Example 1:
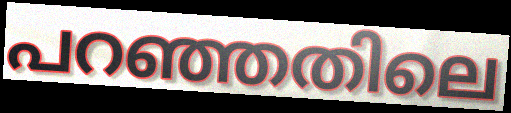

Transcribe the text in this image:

പറഞ്ഞതിലെ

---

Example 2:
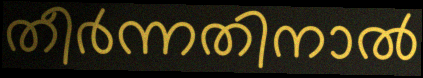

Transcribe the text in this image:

തീർന്നതിനാൽ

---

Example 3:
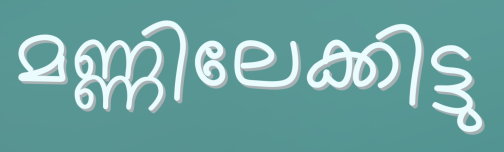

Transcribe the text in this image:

മണ്ണിലേക്കിട്ടു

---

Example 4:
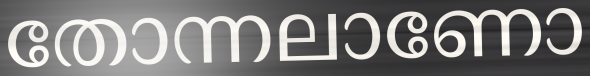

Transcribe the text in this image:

തോന്നലാണോ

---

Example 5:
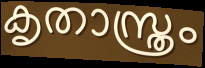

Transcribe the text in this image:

കൃതാസ്ത്രം